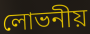
লোভনীয়